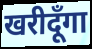
खरीदूँगा